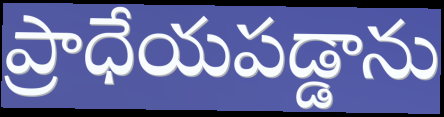
ప్రాధేయపడ్డాను